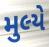
મુલ્યે